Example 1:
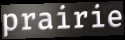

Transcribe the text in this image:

prairie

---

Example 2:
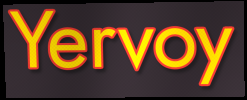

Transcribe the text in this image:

Yervoy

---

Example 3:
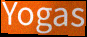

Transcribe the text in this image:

Yogas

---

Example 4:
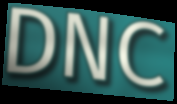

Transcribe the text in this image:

DNC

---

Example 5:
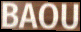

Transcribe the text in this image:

BAOU